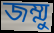
জম্মু